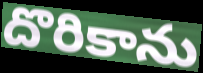
దొరికాను